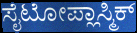
ಸೈಟೋಪ್ಲಾಸ್ಮಿಕ್